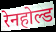
रेनहोल्ड